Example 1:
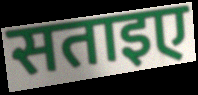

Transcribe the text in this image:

सताइए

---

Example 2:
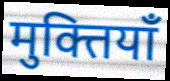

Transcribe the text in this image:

मुक्तियाँ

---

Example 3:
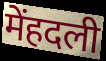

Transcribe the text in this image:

मेंहदली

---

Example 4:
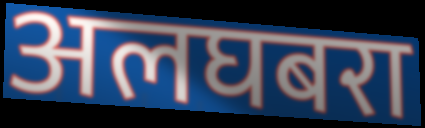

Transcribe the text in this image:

अलघबरा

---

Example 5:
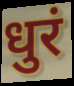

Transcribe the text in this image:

धुरं